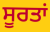
ਸੂਰਤਾਂ